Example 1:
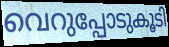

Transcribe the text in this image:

വെറുപ്പോടുകൂടി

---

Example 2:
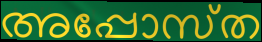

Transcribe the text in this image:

അപ്പോസ്‌ത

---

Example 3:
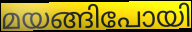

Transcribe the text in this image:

മയങ്ങിപോയി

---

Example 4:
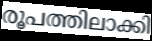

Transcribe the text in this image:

രൂപത്തിലാക്കി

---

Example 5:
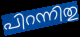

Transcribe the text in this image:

പിറന്നിതു